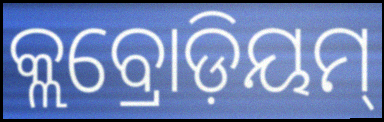
କ୍ଲବ୍ରୋଡ଼ିୟମ୍